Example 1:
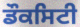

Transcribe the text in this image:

ਡੌਕਸਿਟੀ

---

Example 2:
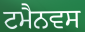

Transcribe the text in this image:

ਟਮੈਨਵਸ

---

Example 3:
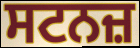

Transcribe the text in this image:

ਸਟਨਜ਼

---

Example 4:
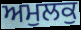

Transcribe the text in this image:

ਅਮੁਲਕੁ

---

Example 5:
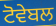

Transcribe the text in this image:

ਟੋਵੇਬਲ